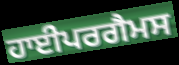
ਹਾਈਪਰਗੈਮਸ